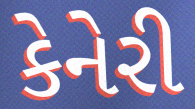
કેનેરી